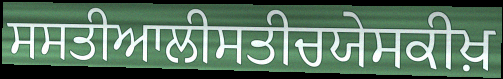
ਸਸਤੀਆਲੀਸਤੀਚਯੇਸਕੀਖ਼